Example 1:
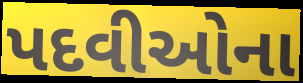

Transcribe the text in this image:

પદવીઓના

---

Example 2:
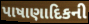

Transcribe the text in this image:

પાષાણાદિકની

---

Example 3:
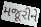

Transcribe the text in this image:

મજૂરીને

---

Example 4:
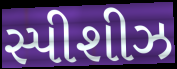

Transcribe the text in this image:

સ્પીશીઝ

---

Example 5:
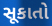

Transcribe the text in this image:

સૂકાતો